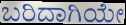
ಬರಿದಾಗಿಯೇ